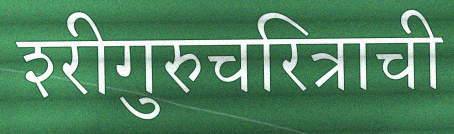
श्रीगुरुचरित्राची